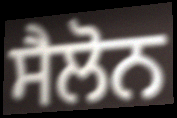
ਸੈਲੋਨ